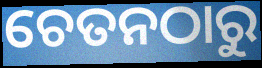
ଚେତନଠାରୁ